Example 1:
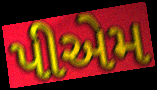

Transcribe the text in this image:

પીએમ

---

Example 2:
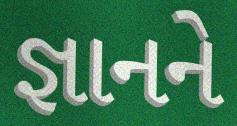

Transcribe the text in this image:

જ્ઞાનને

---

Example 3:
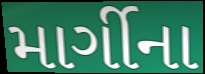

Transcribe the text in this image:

માર્ગીના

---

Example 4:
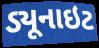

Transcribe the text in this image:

ડ્યૂનાઇટ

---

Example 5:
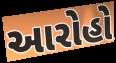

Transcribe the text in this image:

આરોહો